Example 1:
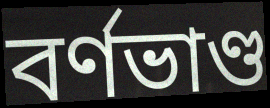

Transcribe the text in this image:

বর্ণভাণ্ড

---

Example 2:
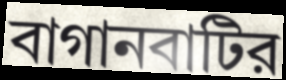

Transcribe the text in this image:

বাগানবাটির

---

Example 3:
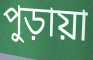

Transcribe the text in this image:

পুড়ায়া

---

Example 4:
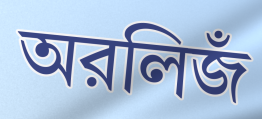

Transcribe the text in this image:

অরলিজঁ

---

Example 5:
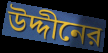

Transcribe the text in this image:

উদ্দীনের